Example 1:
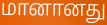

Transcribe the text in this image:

மானானது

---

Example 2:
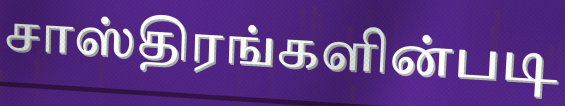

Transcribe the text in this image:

சாஸ்திரங்களின்படி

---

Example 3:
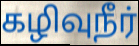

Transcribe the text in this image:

கழிவுநீர்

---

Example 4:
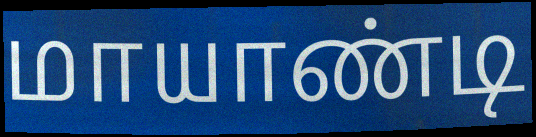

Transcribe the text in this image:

மாயாண்டி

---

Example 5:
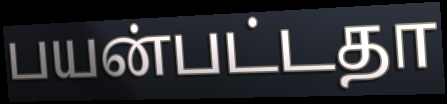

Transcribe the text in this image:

பயன்பட்டதா